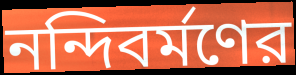
নন্দিবর্মণের